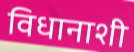
विधानाशी